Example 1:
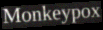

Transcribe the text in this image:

Monkeypox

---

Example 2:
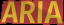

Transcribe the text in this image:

ARIA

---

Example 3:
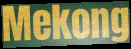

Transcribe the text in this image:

Mekong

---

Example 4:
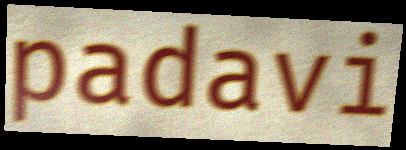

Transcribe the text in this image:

padavi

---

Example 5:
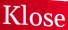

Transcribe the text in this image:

Klose